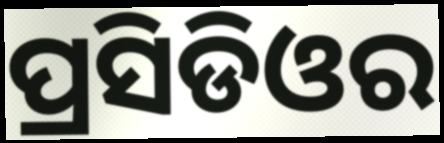
ପ୍ରସିଡିଓର